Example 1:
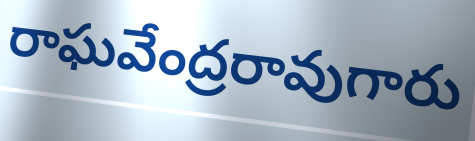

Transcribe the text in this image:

రాఘవేంద్రరావుగారు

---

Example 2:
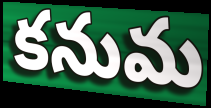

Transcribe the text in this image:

కనుమ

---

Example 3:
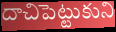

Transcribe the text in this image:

దాచిపెట్టుకుని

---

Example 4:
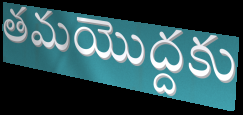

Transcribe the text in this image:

తమయొద్దకు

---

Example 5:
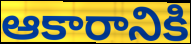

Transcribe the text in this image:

ఆకారానికి